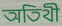
অতিথী